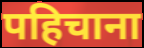
पहिचाना